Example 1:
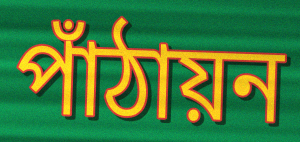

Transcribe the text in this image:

পাঁঠায়ন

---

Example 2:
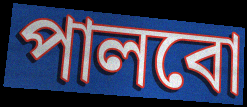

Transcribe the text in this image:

পালবো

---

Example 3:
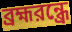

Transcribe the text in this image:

ব্রহ্মরন্ধ্রে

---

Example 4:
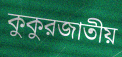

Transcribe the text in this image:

কুকুরজাতীয়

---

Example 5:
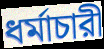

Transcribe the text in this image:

ধর্মাচারী